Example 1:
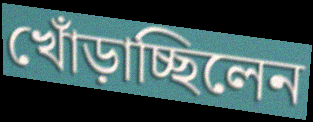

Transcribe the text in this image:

খোঁড়াচ্ছিলেন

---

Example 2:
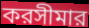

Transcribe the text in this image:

করসীমার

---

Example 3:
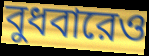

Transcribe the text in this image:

বুধবারেও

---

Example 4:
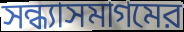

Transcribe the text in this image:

সন্ধ্যাসমাগমের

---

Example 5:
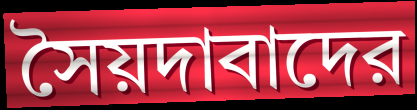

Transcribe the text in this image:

সৈয়দাবাদের